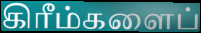
கிரீம்களைப்